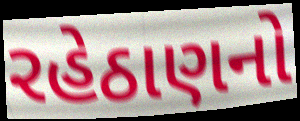
રહેઠાણનો